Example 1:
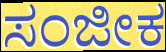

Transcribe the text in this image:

ಸಂಜೀಕ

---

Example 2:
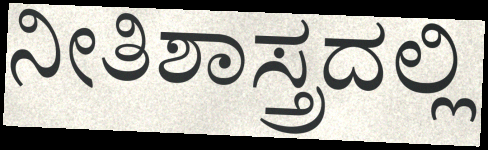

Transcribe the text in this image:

ನೀತಿಶಾಸ್ತ್ರದಲ್ಲಿ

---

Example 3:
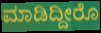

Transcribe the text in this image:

ಮಾಡಿದ್ದೀರೊ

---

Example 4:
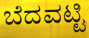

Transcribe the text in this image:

ಬೆದವಟ್ಟಿ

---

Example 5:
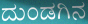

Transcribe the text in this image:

ದುಂಡಗಿನ